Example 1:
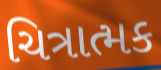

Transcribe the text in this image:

ચિત્રાત્મક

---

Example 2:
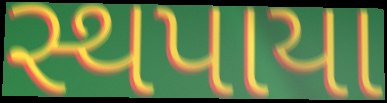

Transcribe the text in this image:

સ્થપાયા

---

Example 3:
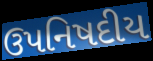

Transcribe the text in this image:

ઉપનિષદીય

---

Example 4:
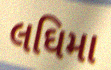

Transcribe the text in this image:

લઘિમા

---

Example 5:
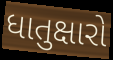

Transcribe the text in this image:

ધાતુક્ષારો